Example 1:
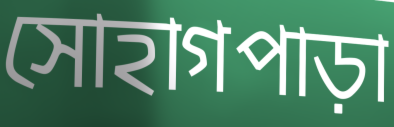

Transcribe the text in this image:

সোহাগপাড়া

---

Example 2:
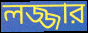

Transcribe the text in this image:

লজ্জার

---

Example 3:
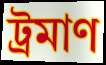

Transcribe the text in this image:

ট্রমাণ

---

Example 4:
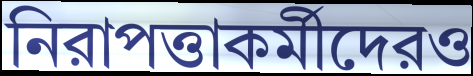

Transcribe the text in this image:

নিরাপত্তাকর্মীদেরও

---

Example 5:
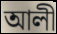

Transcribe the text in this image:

আলী